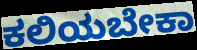
ಕಲಿಯಬೇಕಾ